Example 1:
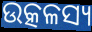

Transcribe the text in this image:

ଉତ୍କଳସ୍ୟ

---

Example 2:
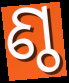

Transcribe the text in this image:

ଣ୍ଠ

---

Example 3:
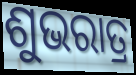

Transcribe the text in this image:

ଶୁଭରାତ୍ର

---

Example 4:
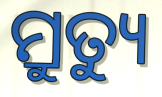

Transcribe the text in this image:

ମ୍ରୁତ୍ୟୁ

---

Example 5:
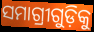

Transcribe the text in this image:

ସମାଗ୍ରୀଗୁଡ଼ିକୁ